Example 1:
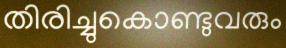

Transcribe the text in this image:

തിരിച്ചുകൊണ്ടുവരും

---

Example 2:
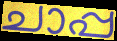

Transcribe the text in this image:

ചാപ്പ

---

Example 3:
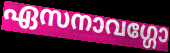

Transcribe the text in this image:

ഏസനാവഗ്ഗോ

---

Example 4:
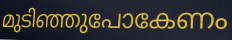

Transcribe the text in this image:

മുടിഞ്ഞുപോകേണം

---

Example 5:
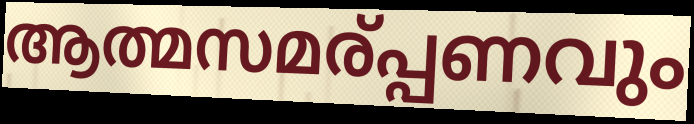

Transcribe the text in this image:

ആത്മസമര്പ്പണവും